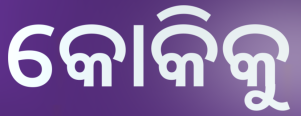
କୋକିକୁ